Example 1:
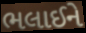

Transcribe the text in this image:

ભલાઈને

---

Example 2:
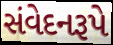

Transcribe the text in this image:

સંવેદનરૂપે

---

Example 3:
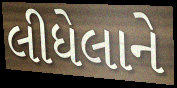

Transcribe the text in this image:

લીધેલાને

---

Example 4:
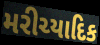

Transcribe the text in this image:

મરીચ્યાદિક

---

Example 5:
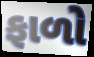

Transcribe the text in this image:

ફાળો